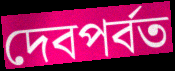
দেবপর্বত